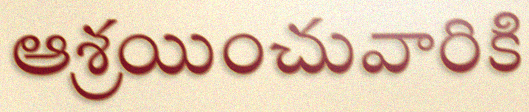
ఆశ్రయించువారికి